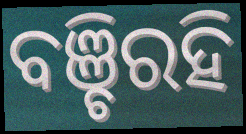
ବଞ୍ଚିରହି